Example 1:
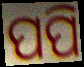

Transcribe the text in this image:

ପପି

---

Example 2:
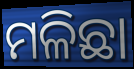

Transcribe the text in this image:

ମଳିଛା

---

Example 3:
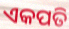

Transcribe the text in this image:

ଏକପତି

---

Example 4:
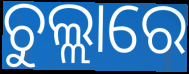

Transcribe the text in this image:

ଚୁଲ୍ଲାରେ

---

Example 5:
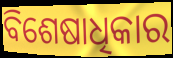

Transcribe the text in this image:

ବିଶେଷାଧିକାର